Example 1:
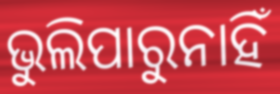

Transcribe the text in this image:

ଭୁଲିପାରୁନାହିଁ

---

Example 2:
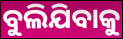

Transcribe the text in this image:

ବୁଲିଯିବାକୁ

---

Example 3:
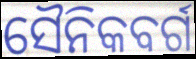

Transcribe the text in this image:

ସୈନିକବର୍ଗ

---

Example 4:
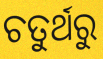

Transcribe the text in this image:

ଚତୁର୍ଥରୁ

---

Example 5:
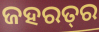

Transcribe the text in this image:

ଜହରତ୍‍ର